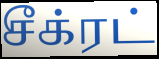
சீக்ரட்